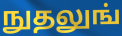
நுதலுங்